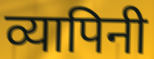
व्यापिनी